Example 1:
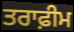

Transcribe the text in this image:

ਤਰਾਫ਼ੀਮ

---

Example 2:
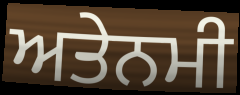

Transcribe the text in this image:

ਅਤੇਨਮੀ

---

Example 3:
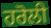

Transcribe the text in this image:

ਹਰੋਲੀ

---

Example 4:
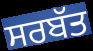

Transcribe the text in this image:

ਸਰਬੱਤ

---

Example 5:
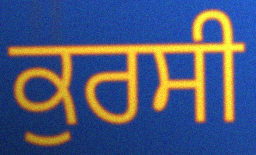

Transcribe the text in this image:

ਕੁਰਸੀ